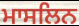
ਮਾਸਲਿਨ